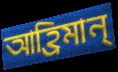
আহ্রিমান্